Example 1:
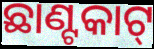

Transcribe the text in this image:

ଛାଣ୍ଟକାଟ୍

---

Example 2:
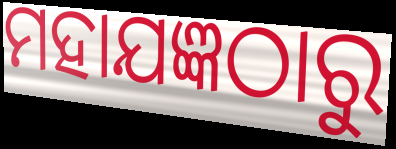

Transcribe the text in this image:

ମହାଯଜ୍ଞଠାରୁ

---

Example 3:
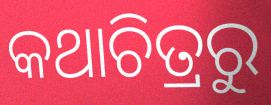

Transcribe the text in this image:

କଥାଚିତ୍ରରୁ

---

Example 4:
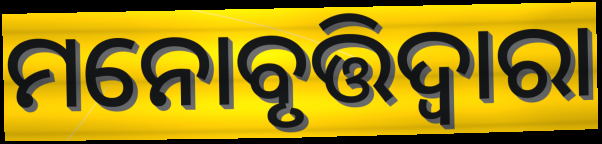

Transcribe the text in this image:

ମନୋବୃତ୍ତିଦ୍ଵାରା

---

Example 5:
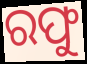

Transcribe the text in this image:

ରଫୁ